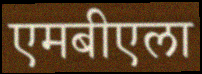
एमबीएला